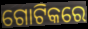
ଗୋଟିକରେ